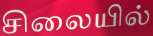
சிலையில்